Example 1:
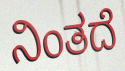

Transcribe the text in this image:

ನಿಂತದೆ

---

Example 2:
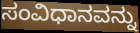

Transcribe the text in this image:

ಸಂವಿಧಾನವನ್ನು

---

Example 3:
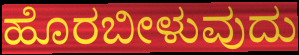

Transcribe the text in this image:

ಹೊರಬೀಳುವುದು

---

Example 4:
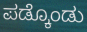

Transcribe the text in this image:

ಪಡ್ಕೊಂಡು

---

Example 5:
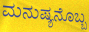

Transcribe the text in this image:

ಮನುಷ್ಯನೊಬ್ಬ